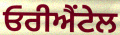
ਓਰੀਐਂਟੇਲ